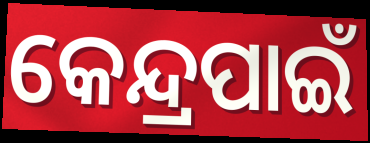
କେନ୍ଦ୍ରପାଇଁ